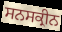
ਸਨਸਕ੍ਰੀਨ